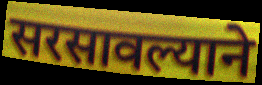
सरसावल्याने